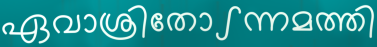
ഏവാശ്രിതോഽന്നമത്തി